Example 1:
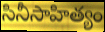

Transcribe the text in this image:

సినీసాహిత్యం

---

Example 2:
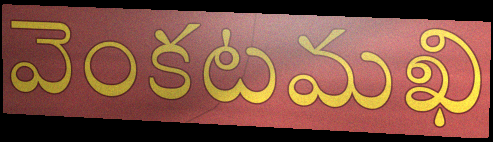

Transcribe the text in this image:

వెంకటమఖి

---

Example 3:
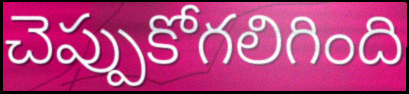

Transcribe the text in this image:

చెప్పుకోగలిగింది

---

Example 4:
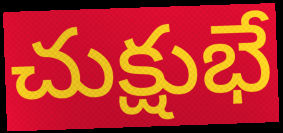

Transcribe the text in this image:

చుక్షుభే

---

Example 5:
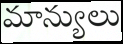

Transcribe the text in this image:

మాన్యులు